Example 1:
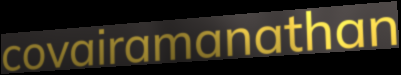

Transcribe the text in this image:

covairamanathan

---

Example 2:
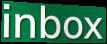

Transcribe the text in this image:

inbox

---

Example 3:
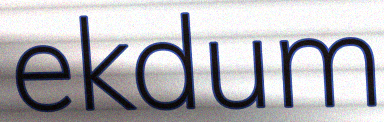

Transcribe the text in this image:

ekdum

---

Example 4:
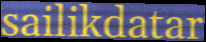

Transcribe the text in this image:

sailikdatar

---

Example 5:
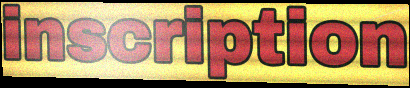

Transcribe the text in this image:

inscription